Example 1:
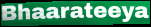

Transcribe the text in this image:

Bhaarateeya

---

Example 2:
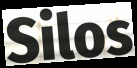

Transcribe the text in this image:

Silos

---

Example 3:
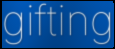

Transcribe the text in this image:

gifting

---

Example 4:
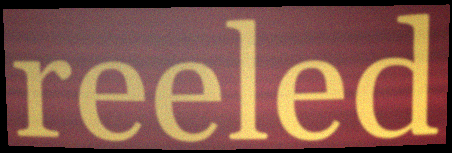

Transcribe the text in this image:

reeled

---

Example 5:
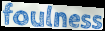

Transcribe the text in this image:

foulness